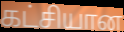
கட்சியான